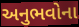
અનુભવોના